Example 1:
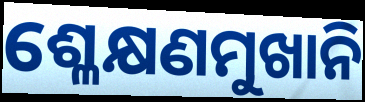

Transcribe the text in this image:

ଶ୍ଳେକ୍ଷଣମୁଖାନି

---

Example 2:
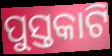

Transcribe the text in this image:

ପୁସ୍ତକାଟି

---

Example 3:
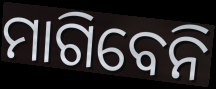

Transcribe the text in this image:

ମାଗିବେନି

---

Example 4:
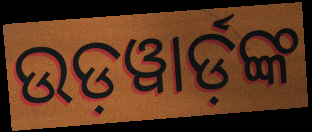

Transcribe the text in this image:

ଉଡ଼ୱାର୍ଡ଼ଙ୍କ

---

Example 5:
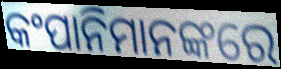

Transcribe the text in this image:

କଂପାନିମାନଙ୍କରେ